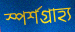
স্পর্শগ্রাহ্য